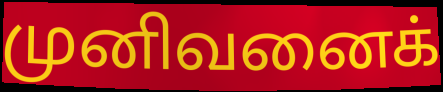
முனிவனைக்